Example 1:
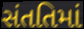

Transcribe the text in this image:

સંતતિમાં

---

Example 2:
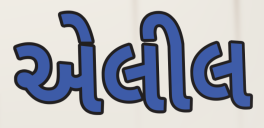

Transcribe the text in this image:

એલીલ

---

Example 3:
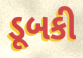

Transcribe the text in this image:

ડૂબકી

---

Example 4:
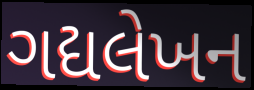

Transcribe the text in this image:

ગદ્યલેખન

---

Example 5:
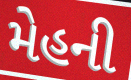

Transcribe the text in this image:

મેહની